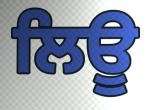
ਲਿਊ